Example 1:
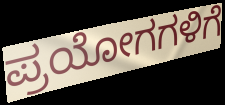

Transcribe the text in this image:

ಪ್ರಯೋಗಗಳಿಗೆ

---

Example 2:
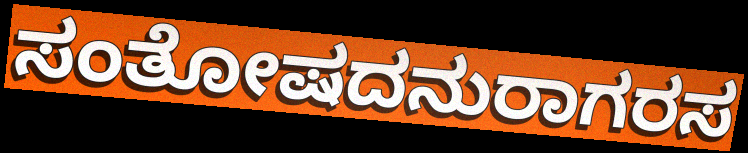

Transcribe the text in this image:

ಸಂತೋಷದನುರಾಗರಸ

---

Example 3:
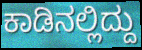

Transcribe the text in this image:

ಕಾಡಿನಲ್ಲಿದ್ದು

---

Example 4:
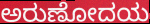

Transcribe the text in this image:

ಅರುಣೋದಯ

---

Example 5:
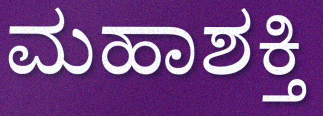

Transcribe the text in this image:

ಮಹಾಶಕ್ತಿ